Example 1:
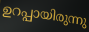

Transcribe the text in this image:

ഉറപ്പായിരുന്നു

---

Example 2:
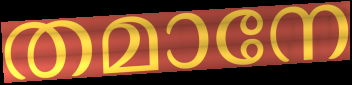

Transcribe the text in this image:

തമാനേ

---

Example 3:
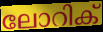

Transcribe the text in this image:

ലോറിക്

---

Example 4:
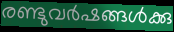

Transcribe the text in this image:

രണ്ടുവർഷങ്ങൾക്കു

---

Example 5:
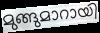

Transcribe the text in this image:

മുങ്ങുമാറായി